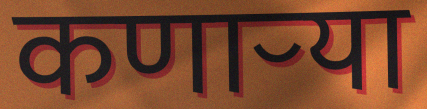
कणाऱ्या